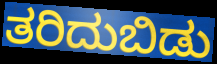
ತರಿದುಬಿಡು